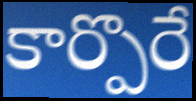
కార్పొరే